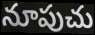
నూపుచు